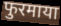
फुरमाया